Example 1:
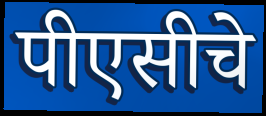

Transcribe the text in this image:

पीएसीचे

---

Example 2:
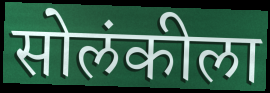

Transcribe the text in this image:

सोलंकीला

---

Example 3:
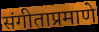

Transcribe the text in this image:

संगीताप्रमाणे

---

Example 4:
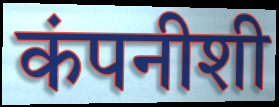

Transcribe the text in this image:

कंपनीशी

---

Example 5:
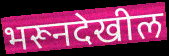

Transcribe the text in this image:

भरूनदेखील